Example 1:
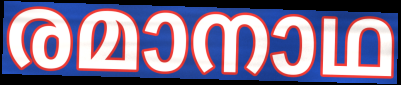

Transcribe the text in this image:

രമാനാഥ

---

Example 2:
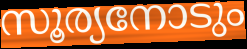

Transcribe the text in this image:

സൂര്യനോടും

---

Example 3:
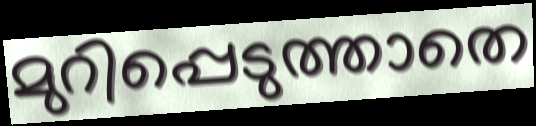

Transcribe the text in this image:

മുറിപ്പെടുത്താതെ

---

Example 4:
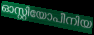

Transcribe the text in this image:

ഓസ്റ്റിയോപീനിയ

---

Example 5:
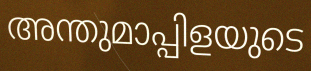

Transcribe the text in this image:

അന്തുമാപ്പിളയുടെ